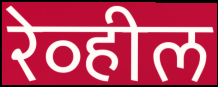
रेव्हील